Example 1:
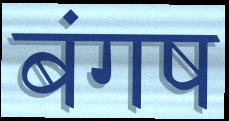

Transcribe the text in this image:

बंगष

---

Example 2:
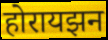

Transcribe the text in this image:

होरायझन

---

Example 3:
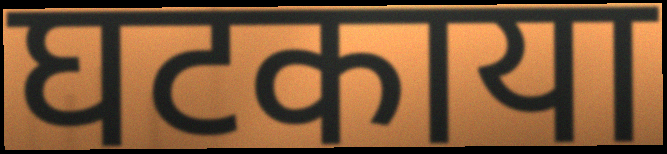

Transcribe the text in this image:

घटकाया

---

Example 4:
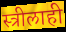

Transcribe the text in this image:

स्त्रीलाही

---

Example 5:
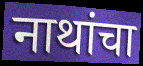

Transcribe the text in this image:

नाथांचा